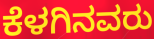
ಕೆಳಗಿನವರು